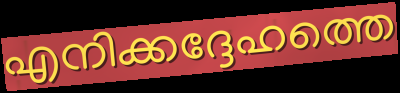
എനിക്കദ്ദേഹത്തെ